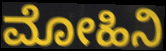
ಮೋಹಿನಿ